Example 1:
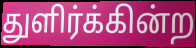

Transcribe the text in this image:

துளிர்க்கின்ற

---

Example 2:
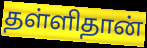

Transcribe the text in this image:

தள்ளிதான்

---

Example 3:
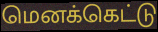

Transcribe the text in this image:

மெனக்கெட்டு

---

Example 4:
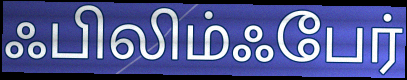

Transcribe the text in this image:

ஃபிலிம்ஃபேர்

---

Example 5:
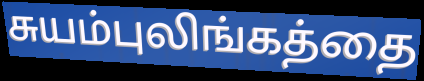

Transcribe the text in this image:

சுயம்புலிங்கத்தை